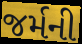
જર્મની